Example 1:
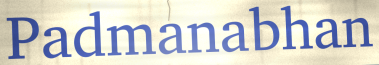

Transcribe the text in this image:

Padmanabhan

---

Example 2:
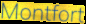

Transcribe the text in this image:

Montfort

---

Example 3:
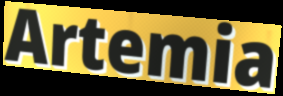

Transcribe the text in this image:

Artemia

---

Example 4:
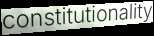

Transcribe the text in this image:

constitutionality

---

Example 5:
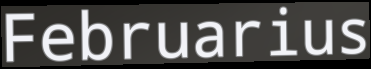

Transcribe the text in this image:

Februarius